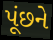
પૂંછને